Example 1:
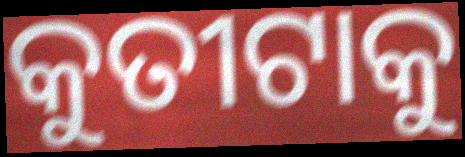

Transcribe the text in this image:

କୁତୀଟାକୁ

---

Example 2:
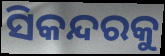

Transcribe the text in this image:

ସିକନ୍ଦରକୁ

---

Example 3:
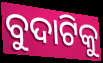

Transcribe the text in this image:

ବୁଦାଟିକୁ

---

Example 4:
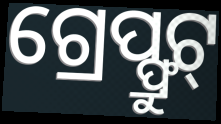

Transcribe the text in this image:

ଗ୍ରେପ୍ଫ୍ରୁଟ୍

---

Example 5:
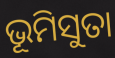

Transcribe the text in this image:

ଭୂମିସୁତା